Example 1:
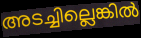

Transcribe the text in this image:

അടച്ചില്ലെങ്കിൽ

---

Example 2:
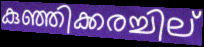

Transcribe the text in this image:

കുഞ്ഞിക്കരച്ചില്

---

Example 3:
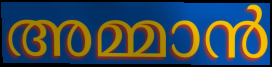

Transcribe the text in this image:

അമ്മാൻ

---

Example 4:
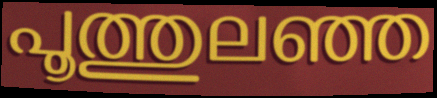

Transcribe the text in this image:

പൂത്തുലഞ്ഞ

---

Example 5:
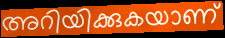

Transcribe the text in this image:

അറിയിക്കുകയാണ്